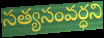
సత్యసంవర్ధని